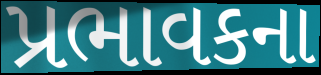
પ્રભાવકના